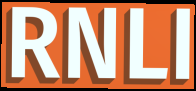
RNLI